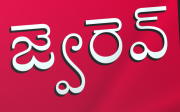
జ్వెరెవ్